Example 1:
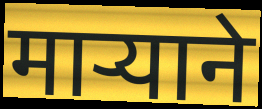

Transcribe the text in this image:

मार्‍याने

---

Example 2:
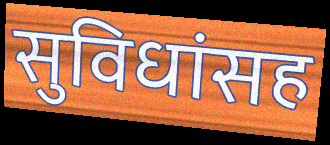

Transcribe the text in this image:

सुविधांसह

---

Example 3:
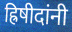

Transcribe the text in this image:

ह्रिषीदांनी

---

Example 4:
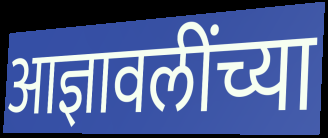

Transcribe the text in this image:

आज्ञावलींच्या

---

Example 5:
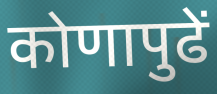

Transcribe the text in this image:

कोणापुढें